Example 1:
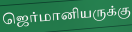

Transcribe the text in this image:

ஜெர்மானியருக்கு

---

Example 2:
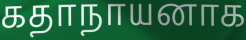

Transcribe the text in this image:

கதாநாயனாக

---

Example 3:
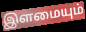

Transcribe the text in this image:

இளமையும்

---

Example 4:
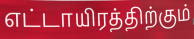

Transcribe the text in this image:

எட்டாயிரத்திற்கும்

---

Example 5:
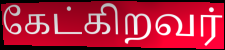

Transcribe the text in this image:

கேட்கிறவர்